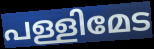
പള്ളിമേട